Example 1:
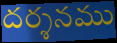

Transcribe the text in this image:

దర్శనము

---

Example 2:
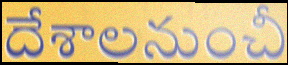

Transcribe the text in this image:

దేశాలనుంచీ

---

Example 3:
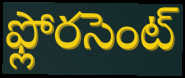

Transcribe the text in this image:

ఫ్లోరసెంట్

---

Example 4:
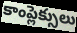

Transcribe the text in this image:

కాంప్లెక్సులు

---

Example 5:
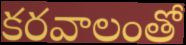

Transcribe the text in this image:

కరవాలంతో